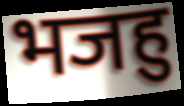
भजहु